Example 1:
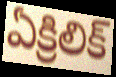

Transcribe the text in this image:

ఏక్రిలిక్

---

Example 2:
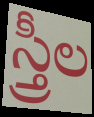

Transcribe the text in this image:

స్త్రీల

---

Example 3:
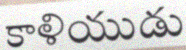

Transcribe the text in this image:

కాళియుడు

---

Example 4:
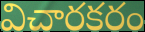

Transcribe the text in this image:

విచారకరం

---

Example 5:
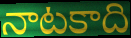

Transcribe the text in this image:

నాటకాది